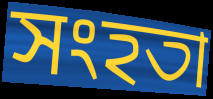
সংহতা